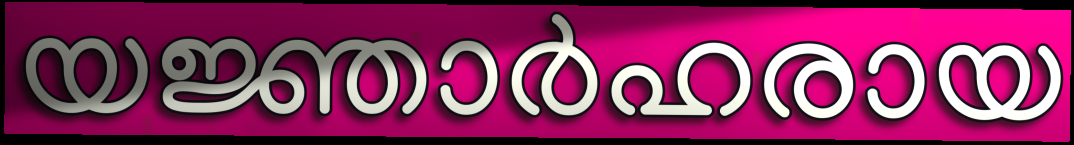
യജ്ഞാർഹരായ